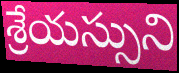
శ్రేయస్సుని